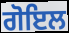
ਗੋਇਲ